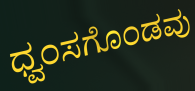
ಧ್ವಂಸಗೊಂಡವು